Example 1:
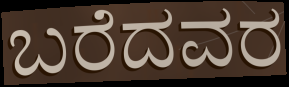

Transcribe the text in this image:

ಬರೆದವರ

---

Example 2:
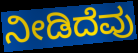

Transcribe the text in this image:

ನೀಡಿದೆವು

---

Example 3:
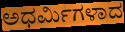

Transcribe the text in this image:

ಅಧರ್ಮಿಗಳಾದ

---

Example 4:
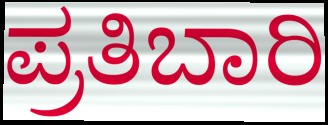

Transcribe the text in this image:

ಪ್ರತಿಬಾರಿ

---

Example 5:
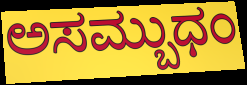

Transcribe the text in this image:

ಅಸಮ್ಬುಧಂ